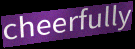
cheerfully